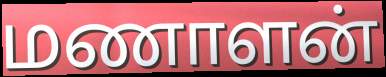
மணாளன்